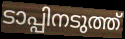
ടാപ്പിനടുത്ത്